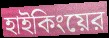
হাইকিংয়ের